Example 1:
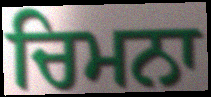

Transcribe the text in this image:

ਚਿਮਨਾ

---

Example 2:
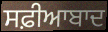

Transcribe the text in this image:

ਸਫ਼ੀਆਬਾਦ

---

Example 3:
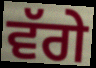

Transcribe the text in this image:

ਵੱਗੇ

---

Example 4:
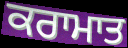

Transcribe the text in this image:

ਕਰਾਮਾਤ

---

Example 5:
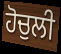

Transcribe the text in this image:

ਹੋਚੁਲੀ